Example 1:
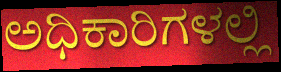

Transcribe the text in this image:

ಅಧಿಕಾರಿಗಳಲ್ಲಿ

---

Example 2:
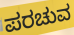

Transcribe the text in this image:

ಪರಚುವ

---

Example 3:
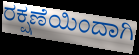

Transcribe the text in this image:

ರಕ್ಷಣೆಯಿಂದಾಗಿ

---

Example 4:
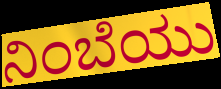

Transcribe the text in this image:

ನಿಂಬೆಯು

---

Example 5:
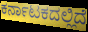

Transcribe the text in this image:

ಕರ್ನಾಟಕದಲ್ಲಿದೆ